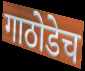
गाठोडेच